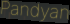
Pandyan